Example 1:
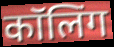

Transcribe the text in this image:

कॉलिंग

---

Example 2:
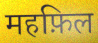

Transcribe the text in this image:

महफ़िल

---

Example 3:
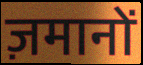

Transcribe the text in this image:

ज़मानों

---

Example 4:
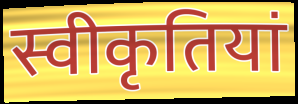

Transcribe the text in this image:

स्वीकृतियां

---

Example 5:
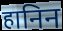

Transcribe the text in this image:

हानिन